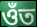
ওঁত